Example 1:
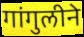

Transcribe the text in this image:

गांगुलीने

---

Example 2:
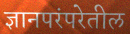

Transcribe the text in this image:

ज्ञानपरंपरेतील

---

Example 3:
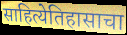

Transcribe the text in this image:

साहित्येतिहासाचा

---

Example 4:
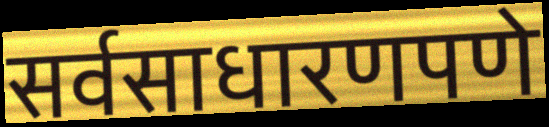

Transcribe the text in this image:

सर्वसाधारणपणे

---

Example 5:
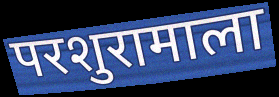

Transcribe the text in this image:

परशुरामाला